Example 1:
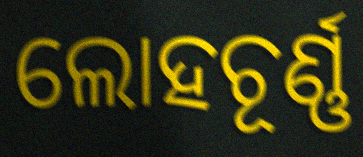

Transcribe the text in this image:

ଲୋହଚୂର୍ଣ୍ଣ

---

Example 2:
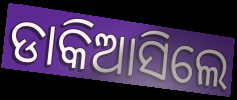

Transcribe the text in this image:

ଡାକିଆସିଲେ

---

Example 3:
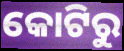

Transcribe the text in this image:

କୋଟିରୁ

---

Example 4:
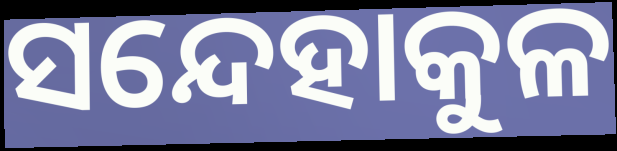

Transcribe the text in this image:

ସନ୍ଦେହାକୁଳ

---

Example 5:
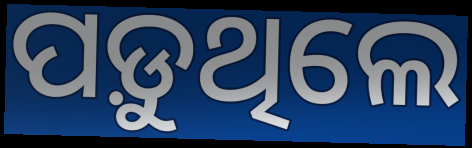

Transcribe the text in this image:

ପଡ଼ୁଥିଲେ